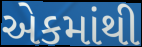
એકમાંથી